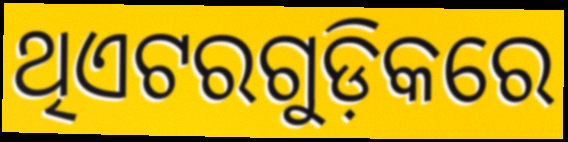
ଥିଏଟରଗୁଡ଼ିକରେ